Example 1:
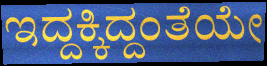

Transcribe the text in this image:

ಇದ್ದಕ್ಕಿದ್ದಂತೆಯೇ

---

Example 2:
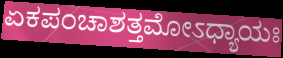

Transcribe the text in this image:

ಏಕಪಂಚಾಶತ್ತಮೋಽಧ್ಯಾಯಃ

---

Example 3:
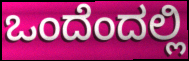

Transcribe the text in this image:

ಒಂದೆಂದಲ್ಲಿ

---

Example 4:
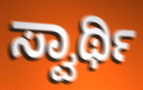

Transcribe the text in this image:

ಸ್ವಾರ್ಥಿ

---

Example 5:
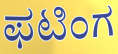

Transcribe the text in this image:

ಫಟಿಂಗ